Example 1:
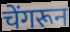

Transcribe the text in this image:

चेंगरून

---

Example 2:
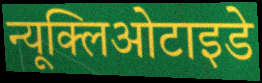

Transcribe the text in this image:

न्यूक्लिओटाइडे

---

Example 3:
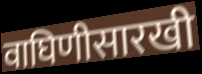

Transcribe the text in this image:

वाघिणीसारखी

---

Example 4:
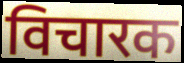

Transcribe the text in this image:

विचारक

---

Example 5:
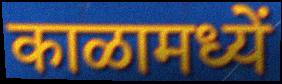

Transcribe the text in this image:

काळामध्यें